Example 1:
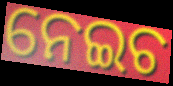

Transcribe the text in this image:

ନେଇଚ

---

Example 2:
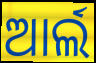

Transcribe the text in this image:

ଆର୍ଲ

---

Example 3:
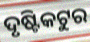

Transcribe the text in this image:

ଦୃଷ୍ଟିକଟୁର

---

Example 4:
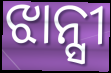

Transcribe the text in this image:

ଝାନ୍ସୀ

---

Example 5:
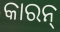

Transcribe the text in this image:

କାରନ୍